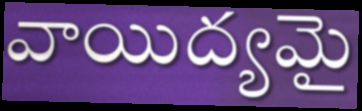
వాయిద్యమై